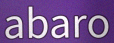
abaro